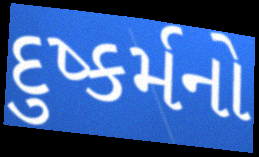
દુષ્કર્મનો